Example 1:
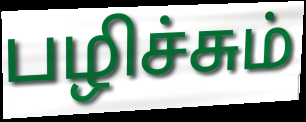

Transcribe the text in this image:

பழிச்சும்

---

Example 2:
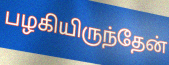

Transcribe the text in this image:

பழகியிருந்தேன்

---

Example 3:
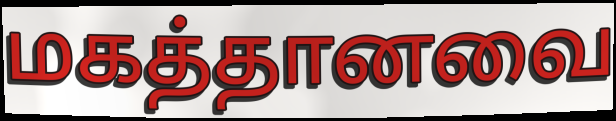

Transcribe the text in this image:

மகத்தானவை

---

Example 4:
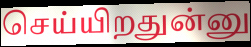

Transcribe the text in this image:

செய்யிறதுன்னு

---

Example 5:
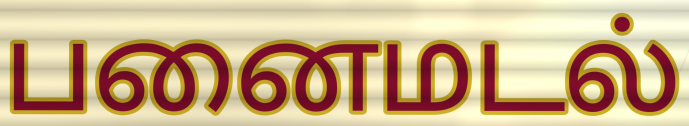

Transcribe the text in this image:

பனைமடல்